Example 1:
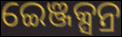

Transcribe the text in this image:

ଇେଞ୍ଜକ୍ସନ୍ର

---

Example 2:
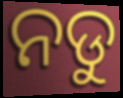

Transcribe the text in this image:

ନଡୁ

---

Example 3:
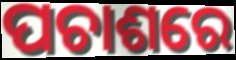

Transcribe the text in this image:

ପଚାଶରେ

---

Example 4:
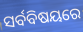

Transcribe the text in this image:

ସର୍ବବିଷୟରେ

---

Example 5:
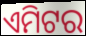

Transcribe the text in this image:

ଏମିଟର